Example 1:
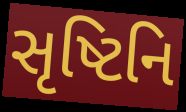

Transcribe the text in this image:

સૃષ્ટિનિ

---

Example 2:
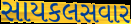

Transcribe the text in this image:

સાયકલસવાર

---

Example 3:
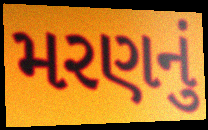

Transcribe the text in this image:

મરણનું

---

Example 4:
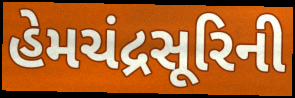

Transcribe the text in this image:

હેમચંદ્રસૂરિની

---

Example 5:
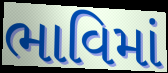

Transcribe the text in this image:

ભાવિમાં